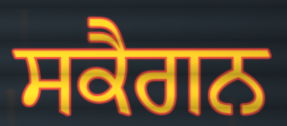
ਸਕੈਗਨ